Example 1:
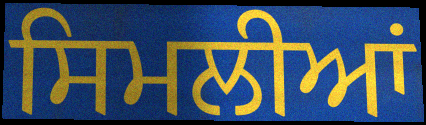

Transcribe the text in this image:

ਸਿਮਲੀਆਂ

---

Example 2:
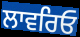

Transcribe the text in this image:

ਲਾਵਰਿਓ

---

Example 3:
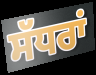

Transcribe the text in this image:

ਸੱਧਰਾਂ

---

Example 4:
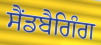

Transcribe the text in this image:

ਸੈਂਡਬੈਗਿੰਗ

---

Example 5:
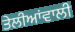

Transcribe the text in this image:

ਤੇਲੀਆਂਵਾਲੀ